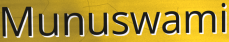
Munuswami